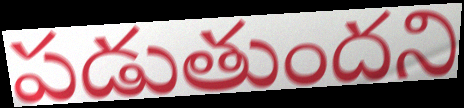
పడుతుందని